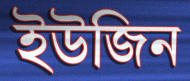
ইউজিন